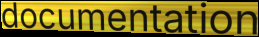
documentation